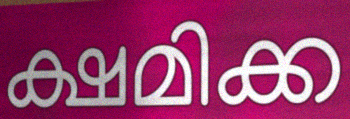
ക്ഷമിക്ക